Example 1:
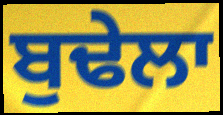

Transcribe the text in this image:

ਬੁਢੇਲਾ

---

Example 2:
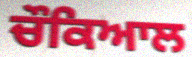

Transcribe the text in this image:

ਚੌਕਿਆਲ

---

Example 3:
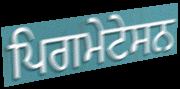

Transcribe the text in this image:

ਪਿਗਮੇਟੇਸਨ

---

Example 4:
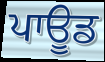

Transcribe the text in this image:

ਪਾਊਡ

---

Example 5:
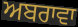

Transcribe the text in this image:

ਅਬਰਾਵਾ